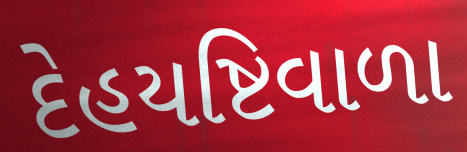
દેહયષ્ટિવાળા